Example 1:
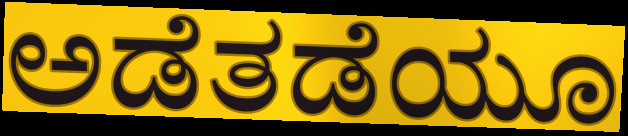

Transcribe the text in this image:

ಅಡೆತಡೆಯೂ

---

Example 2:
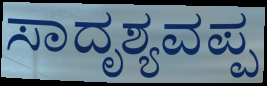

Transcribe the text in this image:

ಸಾದೃಶ್ಯವಪ್ಪ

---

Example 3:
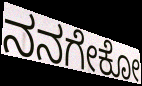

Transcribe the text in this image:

ನನಗೇಕೋ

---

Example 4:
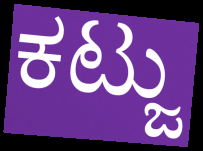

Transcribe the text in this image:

ಕಟ್ಜು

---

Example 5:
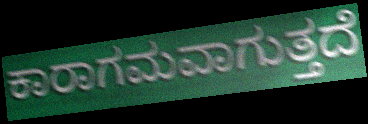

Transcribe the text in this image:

ಕಾರಾಗಮವಾಗುತ್ತದೆ